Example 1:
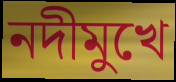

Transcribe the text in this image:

নদীমুখে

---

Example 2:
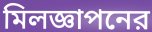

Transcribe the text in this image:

মিলজ্ঞাপনের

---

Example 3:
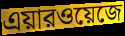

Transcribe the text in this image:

এয়ারওয়েজে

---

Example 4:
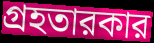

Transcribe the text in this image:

গ্রহতারকার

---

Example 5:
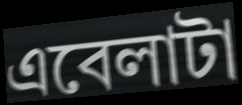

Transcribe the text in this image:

এবেলাটা